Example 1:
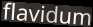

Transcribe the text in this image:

flavidum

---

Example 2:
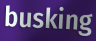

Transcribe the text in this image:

busking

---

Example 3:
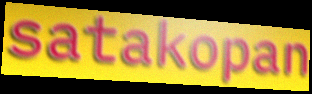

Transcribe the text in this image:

satakopan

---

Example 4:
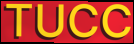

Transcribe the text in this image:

TUCC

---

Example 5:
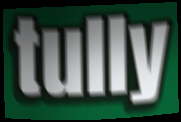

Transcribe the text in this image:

tully